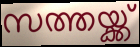
സത്തയ്ക്ക്